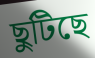
ছুটিছে